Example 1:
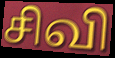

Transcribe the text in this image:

சிவி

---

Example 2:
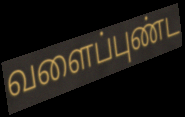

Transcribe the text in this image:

வளைப்புண்ட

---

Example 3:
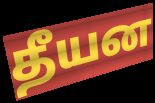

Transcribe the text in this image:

தீயன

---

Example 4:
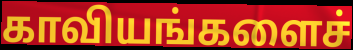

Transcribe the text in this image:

காவியங்களைச்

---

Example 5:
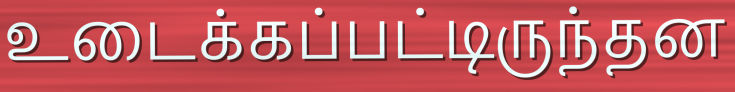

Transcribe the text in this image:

உடைக்கப்பட்டிருந்தன